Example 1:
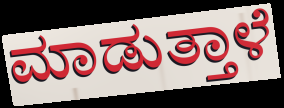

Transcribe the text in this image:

ಮಾಡುತ್ತಾಳೆ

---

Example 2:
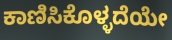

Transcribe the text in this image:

ಕಾಣಿಸಿಕೊಳ್ಳದೆಯೇ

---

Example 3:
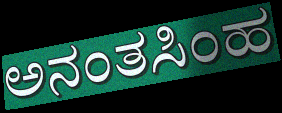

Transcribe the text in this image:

ಅನಂತಸಿಂಹ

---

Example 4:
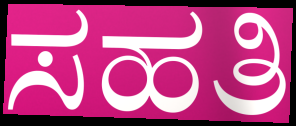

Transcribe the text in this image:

ಸಹತಿ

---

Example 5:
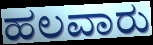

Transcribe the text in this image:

ಹಲವಾರು